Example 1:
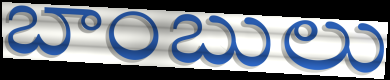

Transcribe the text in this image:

బాంబులు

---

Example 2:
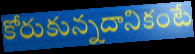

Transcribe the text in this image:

కోరుకున్నదానికంటే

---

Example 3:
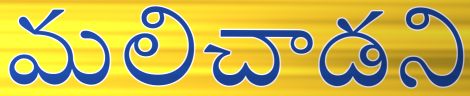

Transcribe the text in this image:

మలిచాడని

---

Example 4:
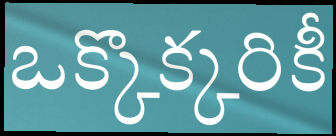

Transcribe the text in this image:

ఒక్కొక్కరికీ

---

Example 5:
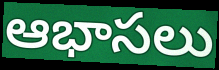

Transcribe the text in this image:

ఆభాసలు